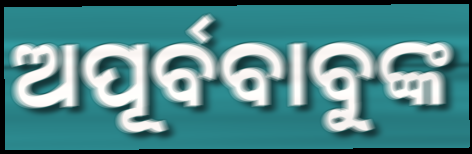
ଅପୂର୍ବବାବୁଙ୍କ